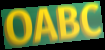
OABC